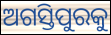
ଅଗସ୍ତିପୁରକୁ